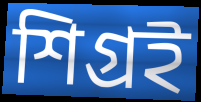
শিগ্রই